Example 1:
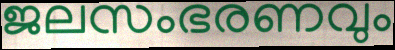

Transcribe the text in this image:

ജലസംഭരണവും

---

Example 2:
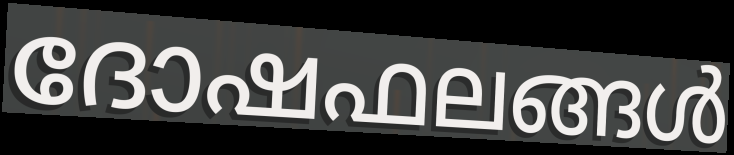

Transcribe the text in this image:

ദോഷഫലങ്ങൾ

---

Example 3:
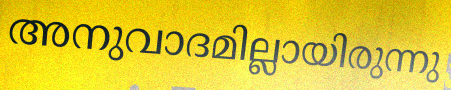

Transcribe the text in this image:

അനുവാദമില്ലായിരുന്നു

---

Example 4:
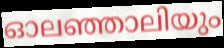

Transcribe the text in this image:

ഓലഞ്ഞാലിയും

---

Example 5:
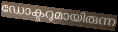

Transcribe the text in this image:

ഡോക്ടറുമായിരുന്ന